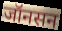
जॉनसन